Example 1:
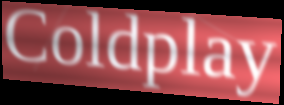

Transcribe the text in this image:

Coldplay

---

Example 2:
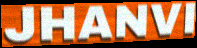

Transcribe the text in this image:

JHANVI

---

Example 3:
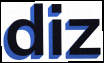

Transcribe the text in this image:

diz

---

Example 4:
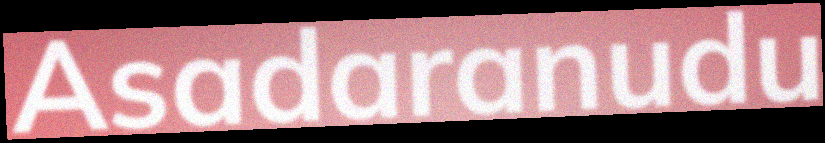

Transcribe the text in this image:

Asadaranudu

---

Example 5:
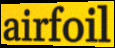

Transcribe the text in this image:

airfoil